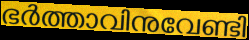
ഭർത്താവിനുവേണ്ടി